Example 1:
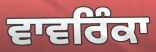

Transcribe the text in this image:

ਵਾਵਰਿੰਕਾ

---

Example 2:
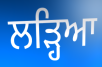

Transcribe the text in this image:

ਲੜ੍ਹਿਆ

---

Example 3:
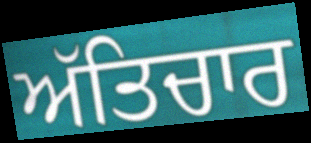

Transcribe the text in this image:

ਅੱਤਿਚਾਰ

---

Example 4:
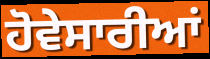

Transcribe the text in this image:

ਹੋਵੇਸਾਰੀਆਂ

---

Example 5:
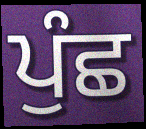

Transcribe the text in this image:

ਪੁੰਛ